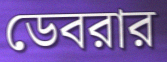
ডেবরার